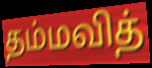
தம்மவித்